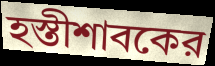
হস্তীশাবকের